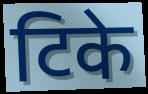
टिके